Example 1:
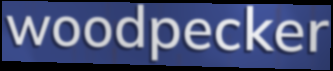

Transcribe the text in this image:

woodpecker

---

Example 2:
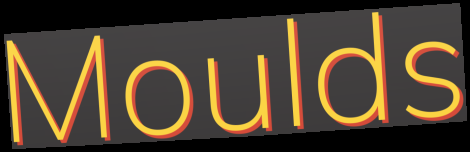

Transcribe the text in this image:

Moulds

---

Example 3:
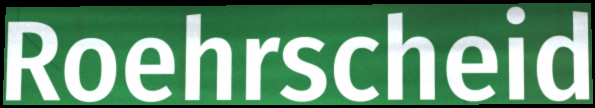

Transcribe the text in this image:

Roehrscheid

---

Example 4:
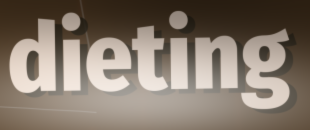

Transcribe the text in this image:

dieting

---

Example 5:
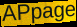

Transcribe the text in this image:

APpage